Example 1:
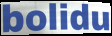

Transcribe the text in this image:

bolidu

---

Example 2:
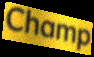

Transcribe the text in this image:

Champ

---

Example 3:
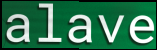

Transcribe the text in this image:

alave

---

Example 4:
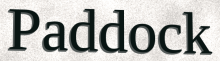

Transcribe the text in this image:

Paddock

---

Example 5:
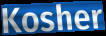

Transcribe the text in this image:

Kosher